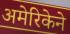
अमेरिकेने